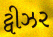
ટ્વીઝર